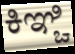
ಕಿಞ್ಚಿ